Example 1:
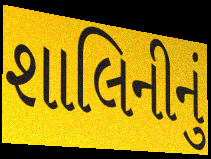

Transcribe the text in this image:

શાલિનીનું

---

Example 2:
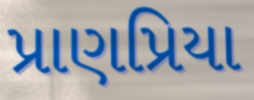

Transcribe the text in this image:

પ્રાણપ્રિયા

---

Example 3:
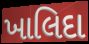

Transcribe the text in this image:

ખાલિદા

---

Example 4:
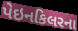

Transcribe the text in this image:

પેઇનકિલરના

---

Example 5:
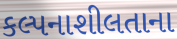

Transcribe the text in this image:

કલ્પનાશીલતાના